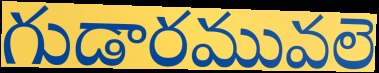
గుడారమువలె